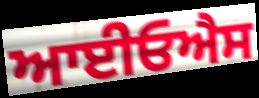
ਆਈਓਐਸ